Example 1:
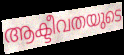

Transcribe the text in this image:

ആക്ടീവതയുടെ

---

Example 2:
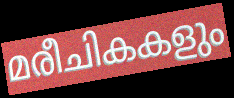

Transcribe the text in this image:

മരീചികകളും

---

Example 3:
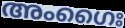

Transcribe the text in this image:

അംഗൈഃ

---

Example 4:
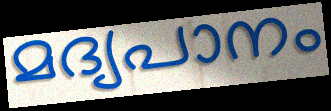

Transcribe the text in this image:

മദ്യപാനം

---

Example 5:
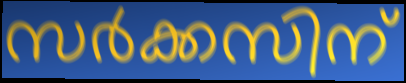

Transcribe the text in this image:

സർക്കസിന്